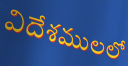
విదేశములలో